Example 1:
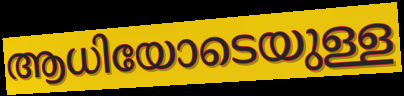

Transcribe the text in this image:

ആധിയോടെയുള്ള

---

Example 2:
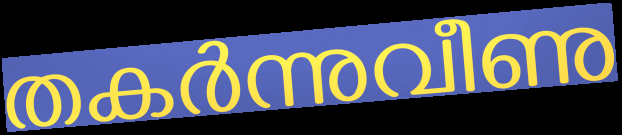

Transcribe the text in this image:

തകർന്നുവീണു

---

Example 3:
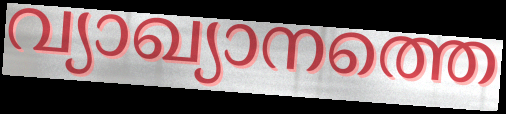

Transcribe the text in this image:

വ്യാഖ്യാനത്തെ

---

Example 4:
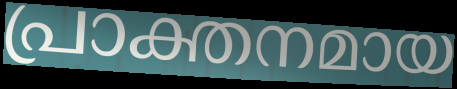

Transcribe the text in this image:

പ്രാക്തനമായ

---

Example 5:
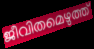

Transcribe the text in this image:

ജീവിതമെഴുത്ത്